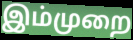
இம்முறை